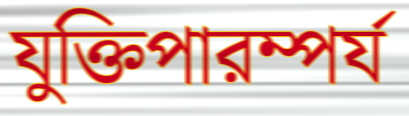
যুক্তিপারম্পর্য